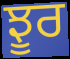
ਝੂਰ